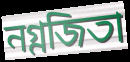
নগ্নজিতা